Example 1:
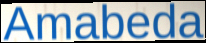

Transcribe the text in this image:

Amabeda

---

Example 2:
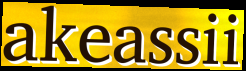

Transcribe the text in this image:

akeassii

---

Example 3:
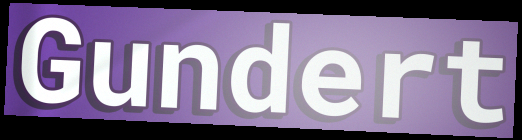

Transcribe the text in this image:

Gundert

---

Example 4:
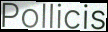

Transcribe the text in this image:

Pollicis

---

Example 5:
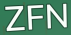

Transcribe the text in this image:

ZFN